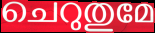
ചെറുതുമേ